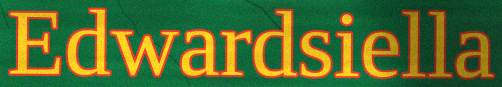
Edwardsiella